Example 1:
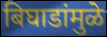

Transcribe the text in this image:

बिघाडांमुळे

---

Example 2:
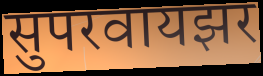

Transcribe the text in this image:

सुपरवायझर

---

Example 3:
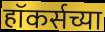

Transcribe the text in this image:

हॉकर्सच्या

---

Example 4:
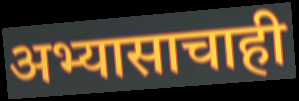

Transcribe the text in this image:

अभ्यासाचाही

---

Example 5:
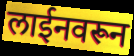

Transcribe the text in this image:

लाईनवरून